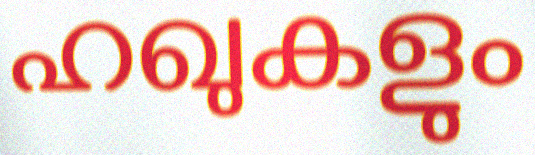
ഹഖുകളും